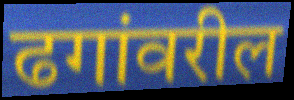
ढगांवरील